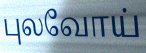
புலவோய்